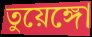
তুয়েঙ্গো